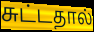
சுட்டதால்